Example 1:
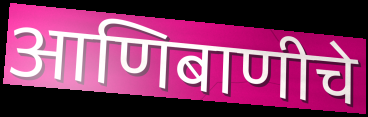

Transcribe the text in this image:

आणिबाणीचे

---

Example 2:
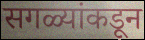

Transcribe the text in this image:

सगळ्यांकडून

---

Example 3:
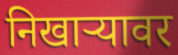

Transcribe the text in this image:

निखार्‍यावर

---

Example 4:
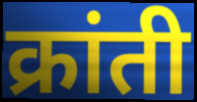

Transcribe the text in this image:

क्रांती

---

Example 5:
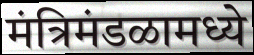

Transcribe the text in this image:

मंत्रिमंडळामध्ये